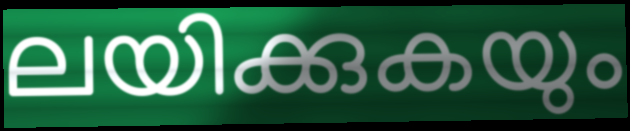
ലയിക്കുകയും